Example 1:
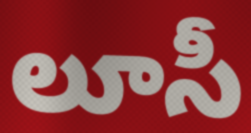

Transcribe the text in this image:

లూసీ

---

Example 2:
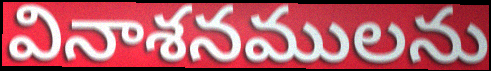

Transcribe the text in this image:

వినాశనములను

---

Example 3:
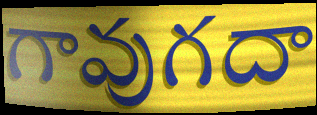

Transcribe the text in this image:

గావుగదా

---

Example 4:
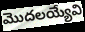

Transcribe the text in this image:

మొదలయ్యేవి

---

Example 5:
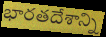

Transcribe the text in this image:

భారతదేశాన్ని